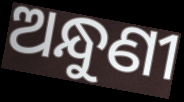
ଅନ୍ଧୁଣୀ